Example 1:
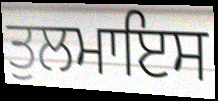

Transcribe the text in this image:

ਤੁਲਮਾਇਸ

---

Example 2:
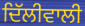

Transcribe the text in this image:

ਦਿੱਲੀਵਾਲੀ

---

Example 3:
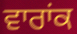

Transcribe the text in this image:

ਵਾਰਾਂਕ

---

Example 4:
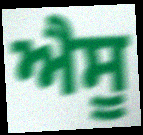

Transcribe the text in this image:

ਐਸੂ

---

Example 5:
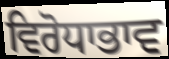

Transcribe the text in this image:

ਵਿਰੋਧਾਭਾਵ